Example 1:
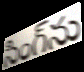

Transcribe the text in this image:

సింగ్‌ను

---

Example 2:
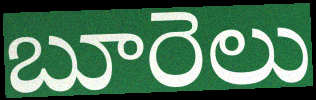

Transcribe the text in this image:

బూరెలు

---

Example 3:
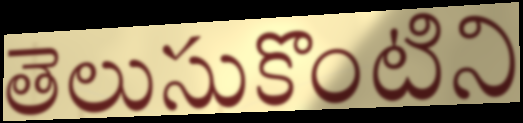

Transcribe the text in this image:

తెలుసుకొంటిని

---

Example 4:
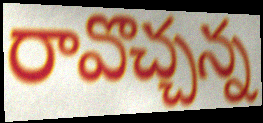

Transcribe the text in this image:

రావొచ్చన్న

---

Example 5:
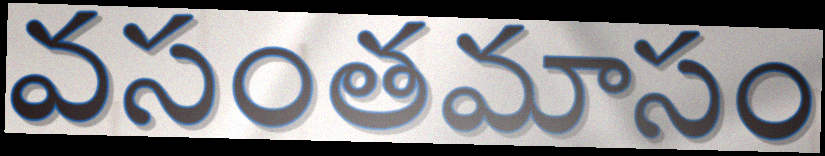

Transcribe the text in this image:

వసంతమాసం